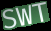
SWT